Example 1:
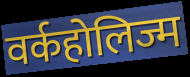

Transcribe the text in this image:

वर्कहोलिज्म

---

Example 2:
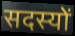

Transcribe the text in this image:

सदस्यों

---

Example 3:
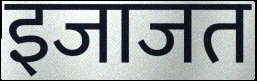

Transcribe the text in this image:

इजाजत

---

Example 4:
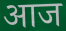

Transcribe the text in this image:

आज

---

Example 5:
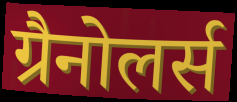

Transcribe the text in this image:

ग्रैनोलर्स